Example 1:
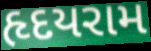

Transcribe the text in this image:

હૃદયરામ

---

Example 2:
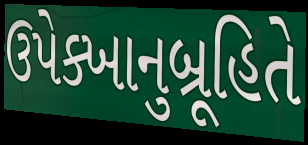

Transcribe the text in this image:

ઉપેક્ખાનુબ્રૂહિતે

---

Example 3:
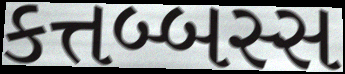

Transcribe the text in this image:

કત્તબ્બસ્સ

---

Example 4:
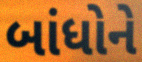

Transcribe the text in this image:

બાંધોને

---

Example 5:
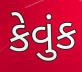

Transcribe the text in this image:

કેવુંક